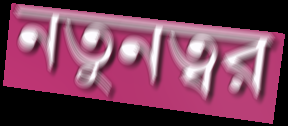
নতুনত্বর